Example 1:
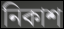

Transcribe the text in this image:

নিকাশ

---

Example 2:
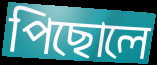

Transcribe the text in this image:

পিছোলে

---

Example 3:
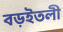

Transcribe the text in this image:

বড়ইতলী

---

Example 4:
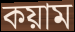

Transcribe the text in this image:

কয়াম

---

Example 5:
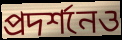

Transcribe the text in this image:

প্রদর্শনেও